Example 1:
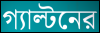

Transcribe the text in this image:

গ্যাল্টনের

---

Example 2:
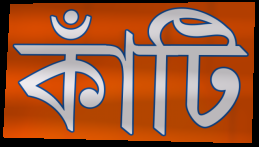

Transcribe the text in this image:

কাঁটি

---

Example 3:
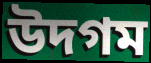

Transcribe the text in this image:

উদগম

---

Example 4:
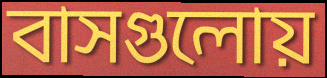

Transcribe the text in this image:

বাসগুলোয়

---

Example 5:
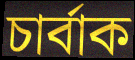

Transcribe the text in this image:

চার্বাক